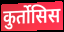
कुर्तोसिस